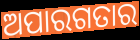
ଅପାରଗତାର